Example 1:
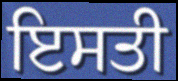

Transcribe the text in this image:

ਇਸਤੀ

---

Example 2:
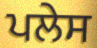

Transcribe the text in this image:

ਪਲੇਸ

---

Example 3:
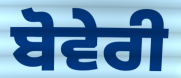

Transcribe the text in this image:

ਬੋਵੇਰੀ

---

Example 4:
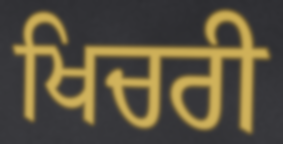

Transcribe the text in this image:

ਖਿਚਰੀ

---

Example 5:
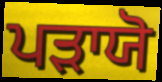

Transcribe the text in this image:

ਪੜਾਯੋ